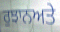
ਰੁਝਾਨਅਤੇ